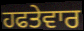
ਹਫਤੇਵਾਰ